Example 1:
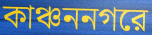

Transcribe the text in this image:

কাঞ্চননগরে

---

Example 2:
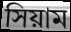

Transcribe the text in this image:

সিয়াম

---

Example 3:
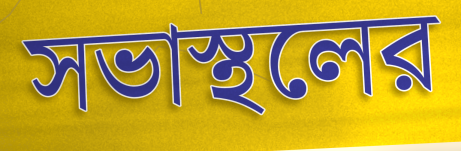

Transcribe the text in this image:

সভাস্থলের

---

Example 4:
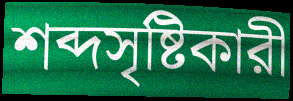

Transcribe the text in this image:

শব্দসৃষ্টিকারী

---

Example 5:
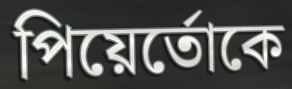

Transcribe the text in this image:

পিয়ের্তোকে